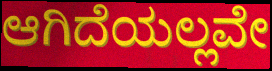
ಆಗಿದೆಯಲ್ಲವೇ